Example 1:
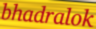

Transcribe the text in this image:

bhadralok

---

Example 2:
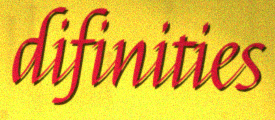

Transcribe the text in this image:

difinities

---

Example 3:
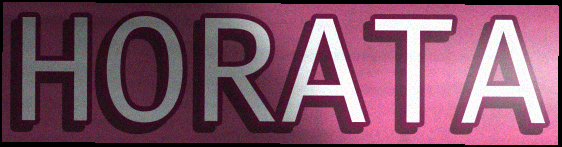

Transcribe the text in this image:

HORATA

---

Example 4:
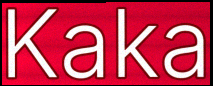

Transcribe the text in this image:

Kaka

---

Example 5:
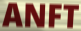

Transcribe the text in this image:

ANFT